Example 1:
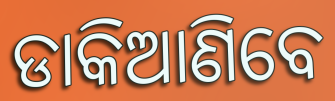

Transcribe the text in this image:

ଡାକିଆଣିବେ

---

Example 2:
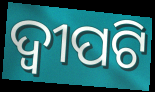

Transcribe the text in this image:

ଦ୍ୱୀପଟି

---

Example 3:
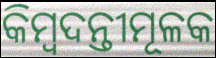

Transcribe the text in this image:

କିମ୍ବଦନ୍ତୀମୂଳକ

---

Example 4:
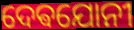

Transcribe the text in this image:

ଦେଵଯୋନୀ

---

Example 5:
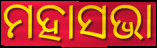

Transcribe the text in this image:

ମହାସଭା